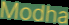
Modha